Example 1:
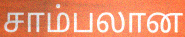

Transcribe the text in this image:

சாம்பலான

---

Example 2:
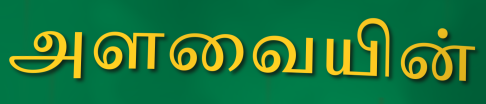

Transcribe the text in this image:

அளவையின்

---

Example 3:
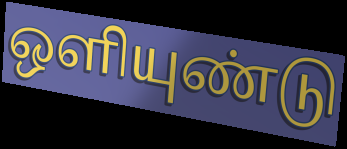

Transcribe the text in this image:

ஒளியுண்டு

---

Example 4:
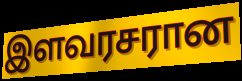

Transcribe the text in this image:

இளவரசரான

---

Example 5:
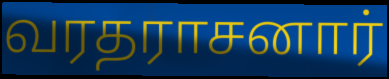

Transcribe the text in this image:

வரதராசனார்